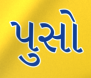
પુસો